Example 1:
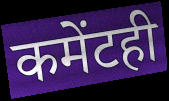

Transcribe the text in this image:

कमेंटही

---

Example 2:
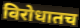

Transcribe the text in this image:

विरोधातच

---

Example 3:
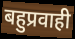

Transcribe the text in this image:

बहुप्रवाही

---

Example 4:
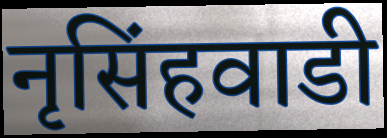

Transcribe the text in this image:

नृसिंहवाडी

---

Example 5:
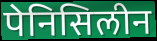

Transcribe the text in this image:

पेनिसिलीन